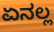
ಏನಲ್ಲ